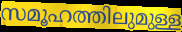
സമൂഹത്തിലുമുള്ള